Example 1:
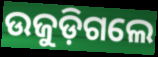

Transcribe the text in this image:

ଉଜୁଡ଼ିଗଲେ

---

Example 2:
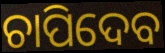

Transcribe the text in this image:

ଚାପିଦେବ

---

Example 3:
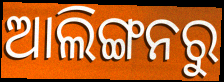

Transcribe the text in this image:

ଆଲିଙ୍ଗନରୁ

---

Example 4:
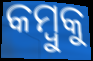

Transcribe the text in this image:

କମ୍ବୁକୁ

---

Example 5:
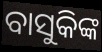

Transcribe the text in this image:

ବାସୁକିଙ୍କ